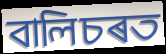
বালিচৰত